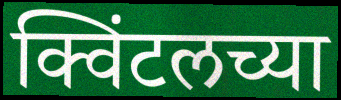
क्विंटलच्या